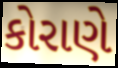
કોરાણે